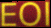
EOI